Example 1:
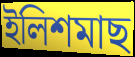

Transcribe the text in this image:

ইলিশমাছ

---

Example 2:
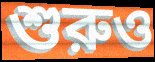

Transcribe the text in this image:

শুরুও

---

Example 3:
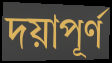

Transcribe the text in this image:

দয়াপূর্ণ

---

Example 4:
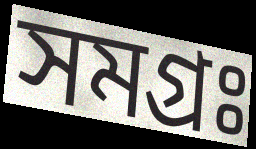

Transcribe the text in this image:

সমগ্রঃ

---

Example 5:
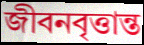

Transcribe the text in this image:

জীবনবৃত্তান্ত